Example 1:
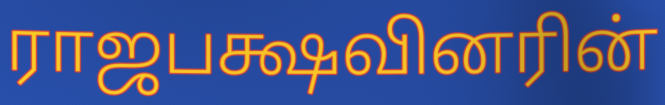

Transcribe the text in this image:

ராஜபக்ஷவினரின்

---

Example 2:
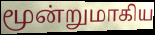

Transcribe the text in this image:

மூன்றுமாகிய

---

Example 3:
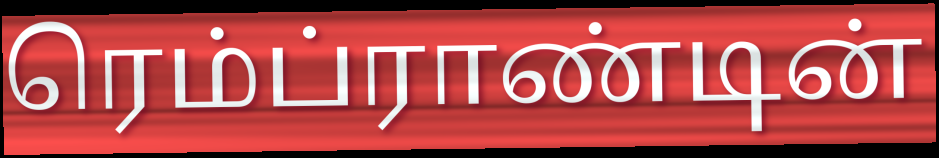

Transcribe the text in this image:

ரெம்ப்ராண்டின்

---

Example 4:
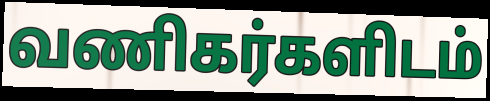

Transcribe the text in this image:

வணிகர்களிடம்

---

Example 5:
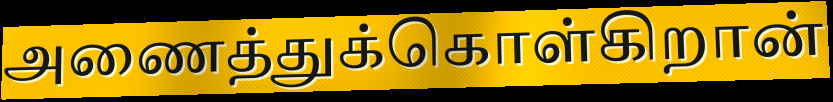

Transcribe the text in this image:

அணைத்துக்கொள்கிறான்